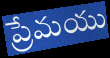
ప్రేమయు